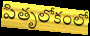
పితృలోకంలో